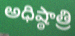
అధిష్ఠాత్రి